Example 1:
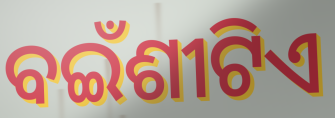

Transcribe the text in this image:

ବଇଁଶୀଟିଏ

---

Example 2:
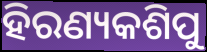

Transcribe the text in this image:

ହିରଣ୍ୟକଶିପୁ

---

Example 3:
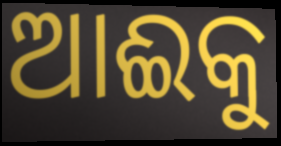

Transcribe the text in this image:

ଆଈକୁ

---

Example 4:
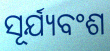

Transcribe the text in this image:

ସୂର୍ଯ୍ୟବଂଶ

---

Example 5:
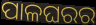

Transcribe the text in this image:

ପାଳଘରର